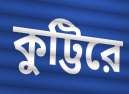
কুট্টিরে